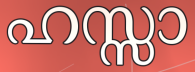
ഹസ്സാ